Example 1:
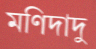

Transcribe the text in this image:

মণিদাদু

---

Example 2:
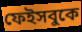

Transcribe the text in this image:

ফেইসবুকে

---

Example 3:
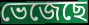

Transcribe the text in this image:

ভেজেছে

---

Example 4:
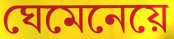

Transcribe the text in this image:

ঘেমেনেয়ে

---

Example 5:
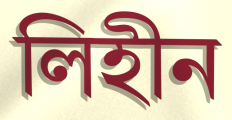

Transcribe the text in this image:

লিহীন